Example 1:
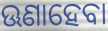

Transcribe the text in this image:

ଊଣାହେବା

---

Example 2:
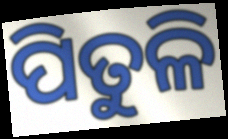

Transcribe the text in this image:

ପିତୁଳି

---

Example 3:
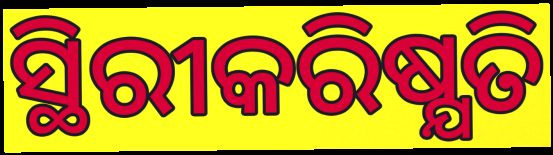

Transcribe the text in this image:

ସ୍ଥିରୀକରିଷ୍ଯତି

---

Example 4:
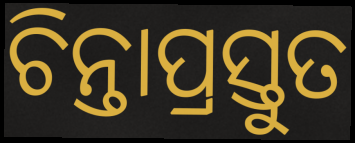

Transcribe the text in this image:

ଚିନ୍ତାପ୍ରସ୍ତୁତ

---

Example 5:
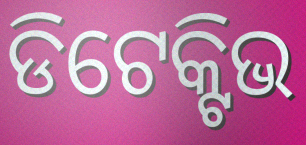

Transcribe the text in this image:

ଡିଟେକ୍ଟିଭ